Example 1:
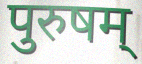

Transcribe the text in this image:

पुरुषम्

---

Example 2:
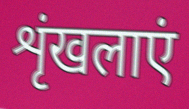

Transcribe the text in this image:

शृंखलाएं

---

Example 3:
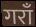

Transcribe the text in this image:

गराँ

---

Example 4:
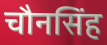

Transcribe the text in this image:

चौनसिंह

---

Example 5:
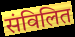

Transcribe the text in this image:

संविलित